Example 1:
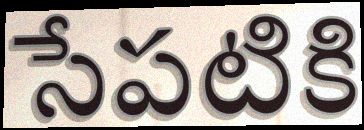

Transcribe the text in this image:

సేపటికి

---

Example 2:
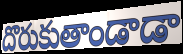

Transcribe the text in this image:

దొరుకుతాండాడా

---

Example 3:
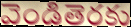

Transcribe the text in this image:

వెండితెరకు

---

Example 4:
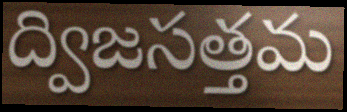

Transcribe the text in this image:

ద్విజసత్తమ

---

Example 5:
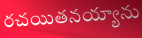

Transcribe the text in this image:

రచయితనయ్యాను